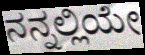
ನನ್ನಲ್ಲಿಯೇ